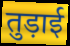
तुड़ाई